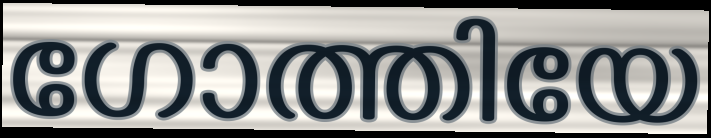
ഗോത്തിയേ